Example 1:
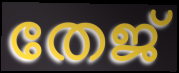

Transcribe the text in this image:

തേജ്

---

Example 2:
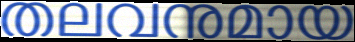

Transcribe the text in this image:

തലവനുമായ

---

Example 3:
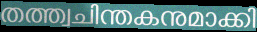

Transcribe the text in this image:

തത്ത്വചിന്തകനുമാക്കി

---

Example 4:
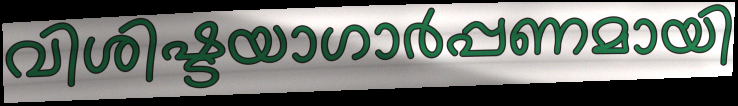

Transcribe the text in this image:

വിശിഷ്ടയാഗാർപ്പണമായി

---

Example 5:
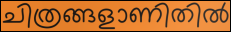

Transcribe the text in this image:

ചിത്രങ്ങളാണിതിൽ